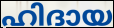
ഹിദായ